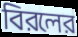
বিরলের